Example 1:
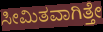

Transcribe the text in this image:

ಸೀಮಿತವಾಗಿತ್ತೇ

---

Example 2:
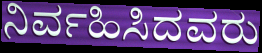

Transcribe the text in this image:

ನಿರ್ವಹಿಸಿದವರು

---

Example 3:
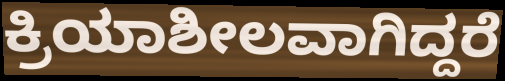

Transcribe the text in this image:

ಕ್ರಿಯಾಶೀಲವಾಗಿದ್ದರೆ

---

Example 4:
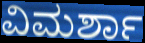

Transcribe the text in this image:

ವಿಮರ್ಶಾ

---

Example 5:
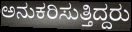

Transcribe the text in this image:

ಅನುಕರಿಸುತ್ತಿದ್ದರು